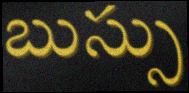
బుస్సు